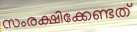
സംരക്ഷിക്കേണ്ടത്